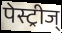
पेस्ट्रीज्